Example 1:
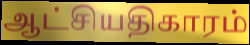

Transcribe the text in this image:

ஆட்சியதிகாரம்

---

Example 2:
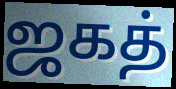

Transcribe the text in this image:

ஜகத்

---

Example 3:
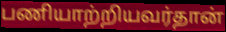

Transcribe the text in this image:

பணியாற்றியவர்தான்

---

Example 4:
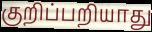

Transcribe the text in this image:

குறிப்பறியாது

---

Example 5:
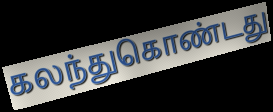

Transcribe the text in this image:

கலந்துகொண்டது